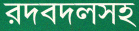
রদবদলসহ